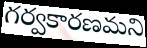
గర్వకారణమని